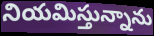
నియమిస్తున్నాను